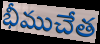
భీముచేత